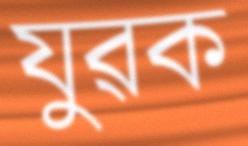
যুৱক